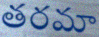
తరమా